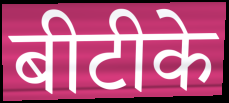
बीटीके